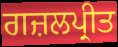
ਗਜ਼ਲਪ੍ਰੀਤ